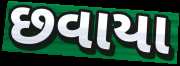
છવાયા